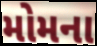
મોમના